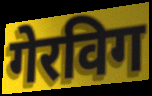
गेरविग